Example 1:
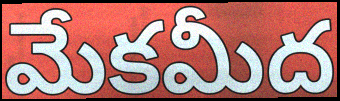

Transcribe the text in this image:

మేకమీద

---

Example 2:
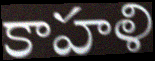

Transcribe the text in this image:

కాహళి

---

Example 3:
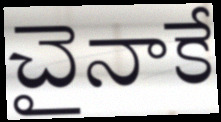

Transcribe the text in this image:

చైనాకే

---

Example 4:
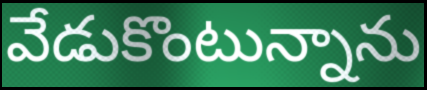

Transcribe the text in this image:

వేడుకొంటున్నాను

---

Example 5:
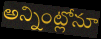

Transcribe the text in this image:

అన్నింట్లోనూ